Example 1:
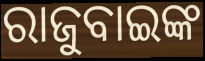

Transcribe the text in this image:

ରାଜୁବାଇଙ୍କ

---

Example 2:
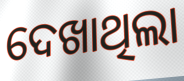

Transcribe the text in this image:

ଦେଖାଥିଲା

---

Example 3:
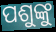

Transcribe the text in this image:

ପଶୁଙ୍କୁ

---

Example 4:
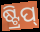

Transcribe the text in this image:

ଷ୍ଟ୍ରିପ୍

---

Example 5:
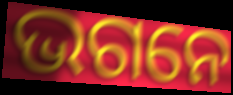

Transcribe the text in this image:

ଭଗନେ